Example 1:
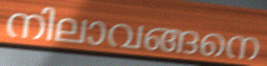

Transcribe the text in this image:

നിലാവങ്ങനെ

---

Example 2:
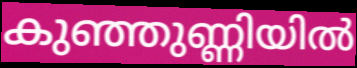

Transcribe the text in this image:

കുഞ്ഞുണ്ണിയിൽ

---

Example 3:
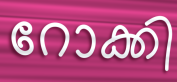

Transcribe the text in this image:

റോക്കി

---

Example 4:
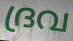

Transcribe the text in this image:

ദ്രവ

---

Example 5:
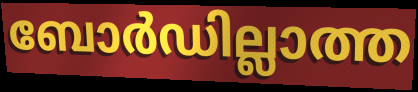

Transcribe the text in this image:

ബോർഡില്ലാത്ത